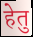
हेतु